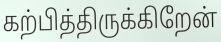
கற்பித்திருக்கிறேன்